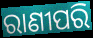
ରାଣୀପରି